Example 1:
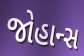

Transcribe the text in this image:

જોહાન્સ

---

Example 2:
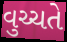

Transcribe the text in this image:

વુચ્ચતે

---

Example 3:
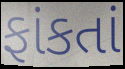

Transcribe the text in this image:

ફાંકતાં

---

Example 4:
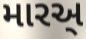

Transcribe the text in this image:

મારઅ્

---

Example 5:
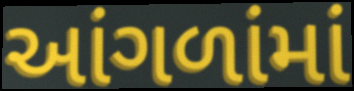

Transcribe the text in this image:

આંગળાંમાં